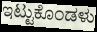
ಇಟ್ಟುಕೊಂಡಳು